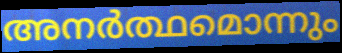
അനർത്ഥമൊന്നും